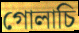
গোলাচি